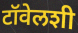
टॉवेलशी